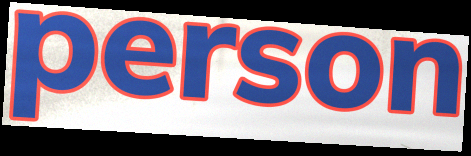
person